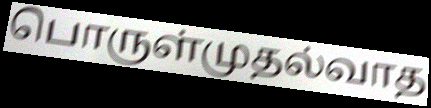
பொருள்முதல்வாத